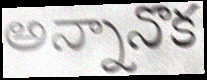
అన్నానొక